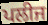
ਪਲੀਜ